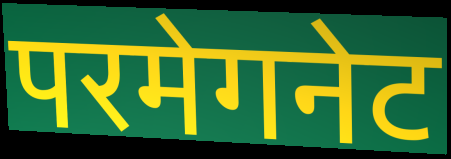
परमेगनेट